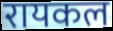
रायकल